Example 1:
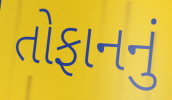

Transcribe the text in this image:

તોફાનનું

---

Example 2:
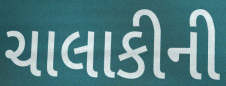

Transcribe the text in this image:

ચાલાકીની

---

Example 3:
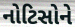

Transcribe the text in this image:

નોટિસોને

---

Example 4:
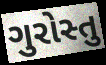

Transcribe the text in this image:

ગુરોસ્તુ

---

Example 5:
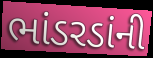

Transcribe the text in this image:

ભાંડરડાંની